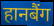
हानबैंग